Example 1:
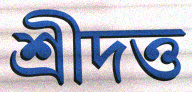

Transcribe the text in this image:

শ্রীদত্ত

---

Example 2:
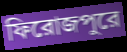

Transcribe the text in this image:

ফিরোজপুরে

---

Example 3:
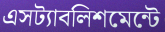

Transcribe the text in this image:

এসট্যাবলিশমেন্টে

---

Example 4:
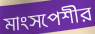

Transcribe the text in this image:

মাংসপেশীর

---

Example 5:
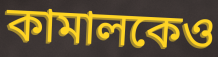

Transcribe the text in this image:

কামালকেও